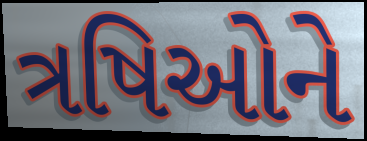
ત્રષિઓને